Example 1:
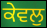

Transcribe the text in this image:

ਕੇਵਲੁ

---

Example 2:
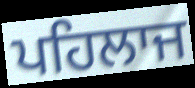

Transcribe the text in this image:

ਪਹਿਲਾਜ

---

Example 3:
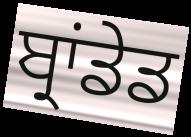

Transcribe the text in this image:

ਬ੍ਰਾਂਡੇਡ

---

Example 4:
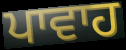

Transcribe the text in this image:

ਪਾਵਾਹ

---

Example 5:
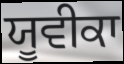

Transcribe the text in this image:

ਯੂਵੀਕਾ